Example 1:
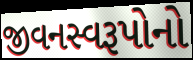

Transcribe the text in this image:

જીવનસ્વરૂપોનો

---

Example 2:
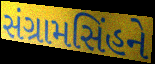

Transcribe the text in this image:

સંગ્રામસિંહને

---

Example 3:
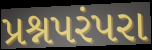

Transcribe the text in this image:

પ્રશ્નપરંપરા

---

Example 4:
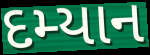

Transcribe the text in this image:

દમ્યાન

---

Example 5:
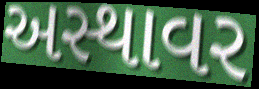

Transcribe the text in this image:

અસ્થાવર